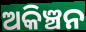
ଅକିଞ୍ଚନ